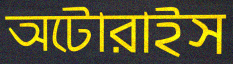
অটোরাইস